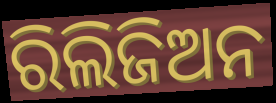
ରିଲିଜିଅନ